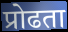
प्रोढता